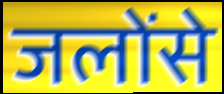
जलोंसे